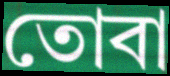
তোবা